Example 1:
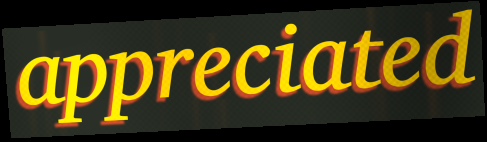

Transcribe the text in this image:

appreciated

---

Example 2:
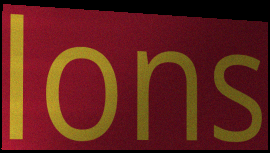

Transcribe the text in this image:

Ions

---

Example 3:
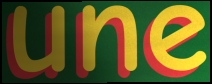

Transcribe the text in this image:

une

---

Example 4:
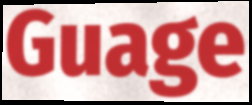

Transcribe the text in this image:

Guage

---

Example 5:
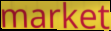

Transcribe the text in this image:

market